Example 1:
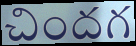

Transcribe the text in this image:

చిందగ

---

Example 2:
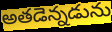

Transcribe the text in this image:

అతడెన్నడును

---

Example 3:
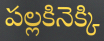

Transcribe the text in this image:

పల్లకినెక్కి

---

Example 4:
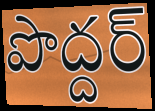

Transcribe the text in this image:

పొద్దర్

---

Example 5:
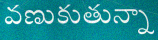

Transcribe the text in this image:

వణుకుతున్నా